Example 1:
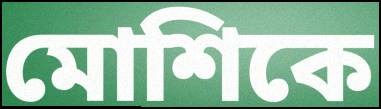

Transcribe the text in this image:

মোশিকে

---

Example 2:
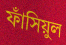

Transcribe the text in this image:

ফাঁসিয়ুল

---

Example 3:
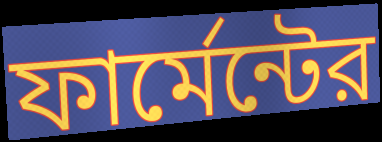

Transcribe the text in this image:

ফার্মেন্টের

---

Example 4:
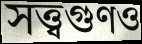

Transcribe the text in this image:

সত্ত্বগুণও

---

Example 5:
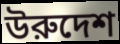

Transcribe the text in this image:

উরুদেশ